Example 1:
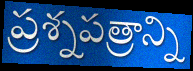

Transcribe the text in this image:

ప్రశ్నపత్రాన్ని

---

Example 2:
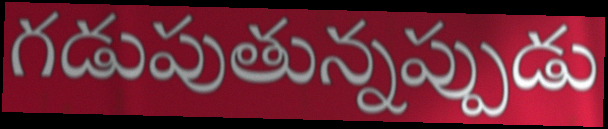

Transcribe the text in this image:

గడుపుతున్నప్పుడు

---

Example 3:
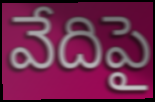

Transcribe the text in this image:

వేదిపై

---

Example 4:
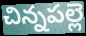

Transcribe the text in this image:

చిన్నపల్లె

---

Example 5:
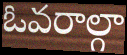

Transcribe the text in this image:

ఓవరాల్గా